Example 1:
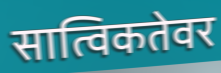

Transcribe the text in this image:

सात्विकतेवर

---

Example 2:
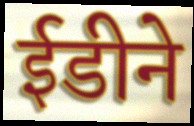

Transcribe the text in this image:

ईडीने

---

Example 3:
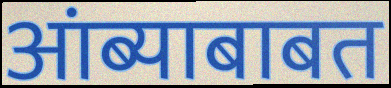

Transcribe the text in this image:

आंब्याबाबत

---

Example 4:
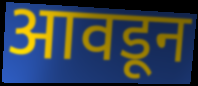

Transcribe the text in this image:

आवडून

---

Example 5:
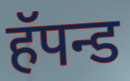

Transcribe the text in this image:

हॅपन्ड